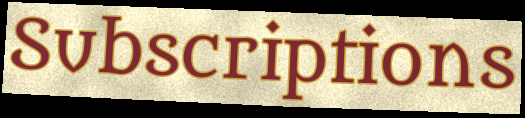
Subscriptions